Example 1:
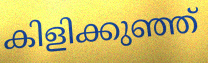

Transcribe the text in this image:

കിളിക്കുഞ്ഞ്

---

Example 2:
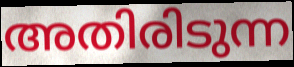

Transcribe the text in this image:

അതിരിടുന്ന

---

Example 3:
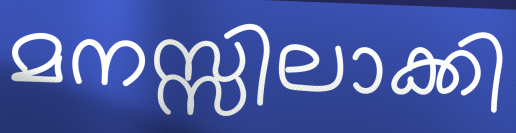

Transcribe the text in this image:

മനസ്സിലാക്കി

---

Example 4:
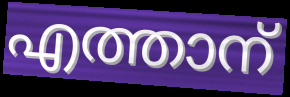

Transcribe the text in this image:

എത്താന്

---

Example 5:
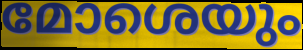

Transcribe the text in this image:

മോശെയും